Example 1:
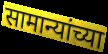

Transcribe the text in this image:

सामान्यांच्या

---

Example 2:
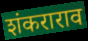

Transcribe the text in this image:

शंकराराव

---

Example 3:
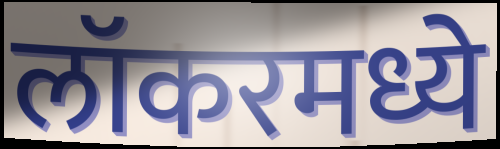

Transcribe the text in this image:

लॉकरमध्ये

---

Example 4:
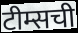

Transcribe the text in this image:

टीम्सची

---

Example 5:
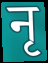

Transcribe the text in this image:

नृ